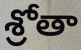
శ్రోతా